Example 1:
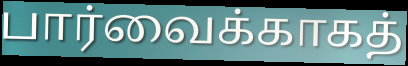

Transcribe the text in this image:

பார்வைக்காகத்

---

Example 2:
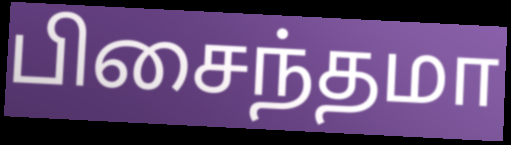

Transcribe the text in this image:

பிசைந்தமா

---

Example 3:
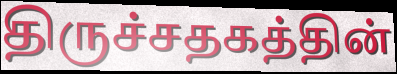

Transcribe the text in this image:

திருச்சதகத்தின்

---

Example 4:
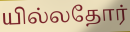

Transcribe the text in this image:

யில்லதோர்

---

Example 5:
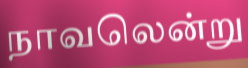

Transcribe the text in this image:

நாவலென்று